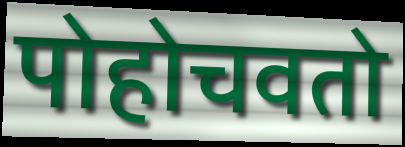
पोहोचवतो